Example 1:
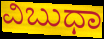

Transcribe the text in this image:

ವಿಬುಧಾ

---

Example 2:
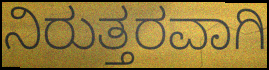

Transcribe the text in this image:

ನಿರುತ್ತರವಾಗಿ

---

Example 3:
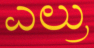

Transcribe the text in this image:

ಎಲ್ರು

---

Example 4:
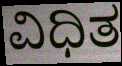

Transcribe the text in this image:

ವಿಧಿತ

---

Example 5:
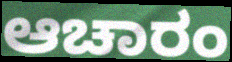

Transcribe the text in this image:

ಆಚಾರಂ